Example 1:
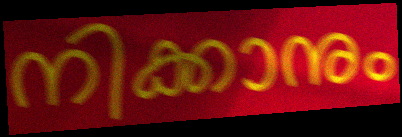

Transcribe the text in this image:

നിക്കാനും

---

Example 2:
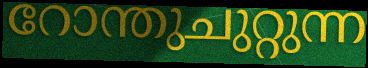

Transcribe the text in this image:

റോന്തുചുറ്റുന്ന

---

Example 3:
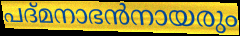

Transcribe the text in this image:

പദ്മനാഭൻനായരും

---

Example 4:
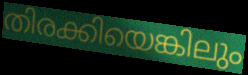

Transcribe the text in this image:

തിരക്കിയെങ്കിലും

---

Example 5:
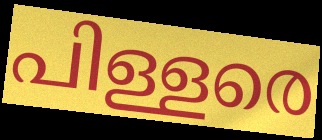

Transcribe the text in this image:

പിള്ളരെ